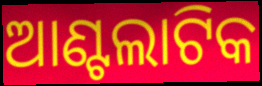
ଆଣ୍ଟଲାଟିକ